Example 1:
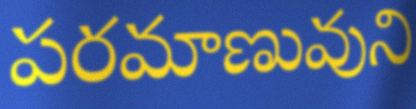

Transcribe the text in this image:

పరమాణువుని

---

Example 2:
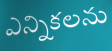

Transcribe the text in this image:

ఎన్నికలను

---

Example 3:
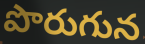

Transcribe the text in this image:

పొరుగున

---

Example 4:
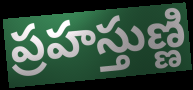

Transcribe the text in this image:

ప్రహస్తుణ్ణి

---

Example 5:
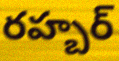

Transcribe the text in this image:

రహ్బర్